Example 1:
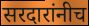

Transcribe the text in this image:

सरदारांनीच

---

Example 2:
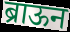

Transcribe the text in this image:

ब्राऊन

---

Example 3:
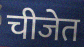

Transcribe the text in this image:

चीजेत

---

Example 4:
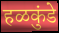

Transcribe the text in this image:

हळकुंडे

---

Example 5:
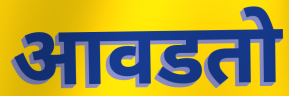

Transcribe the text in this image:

आवडतो